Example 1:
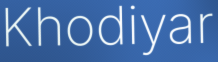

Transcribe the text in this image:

Khodiyar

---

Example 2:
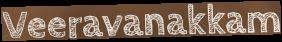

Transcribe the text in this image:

Veeravanakkam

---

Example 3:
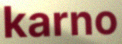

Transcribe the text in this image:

karno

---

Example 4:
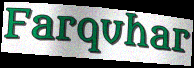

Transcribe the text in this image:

Farquhar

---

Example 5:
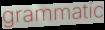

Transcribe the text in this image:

grammatic